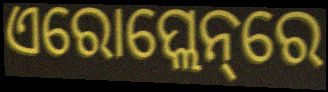
ଏରୋପ୍ଲେନ୍‌ରେ